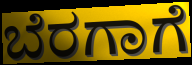
ಬೆರಗಾಗೆ